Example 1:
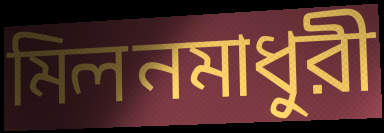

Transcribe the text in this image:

মিলনমাধুরী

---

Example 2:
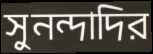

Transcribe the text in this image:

সুনন্দাদির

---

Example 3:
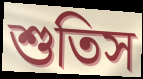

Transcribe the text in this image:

শুতিস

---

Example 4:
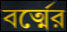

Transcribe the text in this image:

বর্ত্মের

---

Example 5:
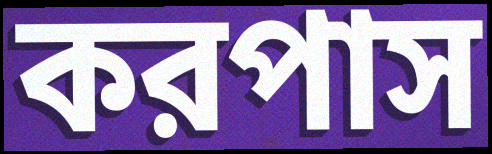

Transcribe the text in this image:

করপাস